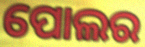
ପୋଲର